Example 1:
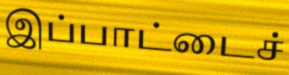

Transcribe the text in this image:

இப்பாட்டைச்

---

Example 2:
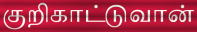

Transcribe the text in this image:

குறிகாட்டுவான்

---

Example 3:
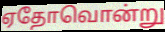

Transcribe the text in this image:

ஏதோவொன்று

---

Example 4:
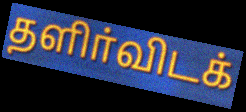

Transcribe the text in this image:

தளிர்விடக்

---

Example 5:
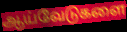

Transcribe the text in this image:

ஆய்வேடுகளை